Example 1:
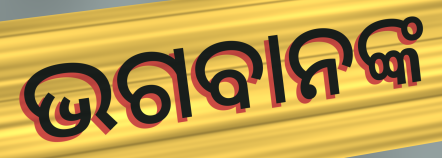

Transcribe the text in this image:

ଭଗବାନଙ୍କ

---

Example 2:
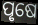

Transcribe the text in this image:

ପୃଷେ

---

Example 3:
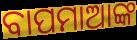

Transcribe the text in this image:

ବାପମାଆଙ୍କ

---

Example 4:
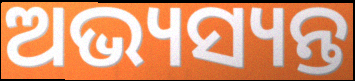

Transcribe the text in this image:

ଅଭ୍ୟସ୍ୟନ୍ତ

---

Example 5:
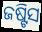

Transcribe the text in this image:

ଜଷ୍ଟିସ